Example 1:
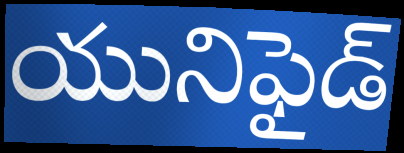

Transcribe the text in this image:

యునిఫైడ్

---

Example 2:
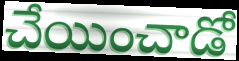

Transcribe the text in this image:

చేయించాడో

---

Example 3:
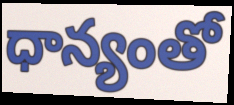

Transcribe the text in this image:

ధాన్యంతో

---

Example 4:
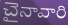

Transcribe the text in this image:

చైనావారి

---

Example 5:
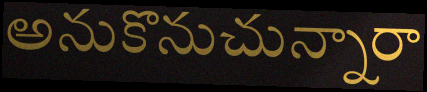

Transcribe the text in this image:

అనుకొనుచున్నారా